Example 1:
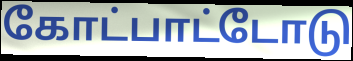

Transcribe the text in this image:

கோட்பாட்டோடு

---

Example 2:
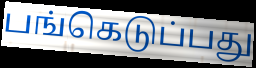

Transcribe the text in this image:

பங்கெடுப்பது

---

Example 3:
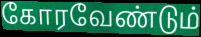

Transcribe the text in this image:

கோரவேண்டும்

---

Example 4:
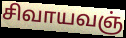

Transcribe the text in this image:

சிவாயவஞ்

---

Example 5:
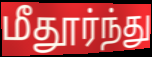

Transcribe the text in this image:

மீதூர்ந்து